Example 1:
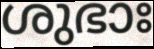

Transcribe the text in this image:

ശുഭാഃ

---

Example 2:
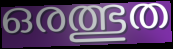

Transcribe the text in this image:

ഒരത്ഭുത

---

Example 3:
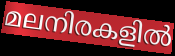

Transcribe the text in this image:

മലനിരകളിൽ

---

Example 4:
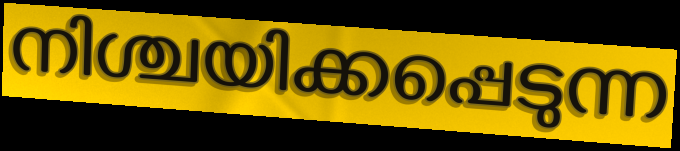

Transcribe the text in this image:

നിശ്ചയിക്കപ്പെടുന്ന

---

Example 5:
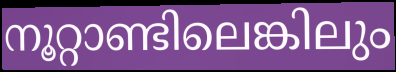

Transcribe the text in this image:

നൂറ്റാണ്ടിലെങ്കിലും